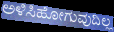
ಅಳಿಸಿಹೋಗುವುದಿಲ್ಲ